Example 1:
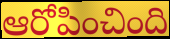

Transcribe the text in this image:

ఆరోపించింది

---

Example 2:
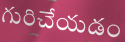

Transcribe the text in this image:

గురిచేయడం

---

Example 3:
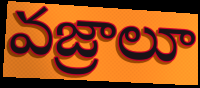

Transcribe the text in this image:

వజ్రాలూ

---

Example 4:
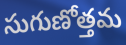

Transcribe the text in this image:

సుగుణోత్తమ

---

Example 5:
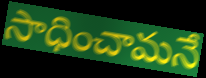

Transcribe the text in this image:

సాధించామనే